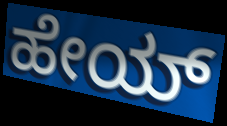
ಹೇಯ್